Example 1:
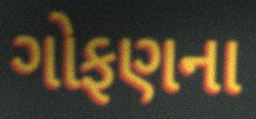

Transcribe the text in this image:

ગોફણના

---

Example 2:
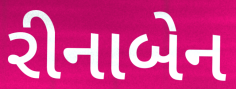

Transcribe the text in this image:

રીનાબેન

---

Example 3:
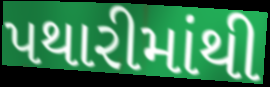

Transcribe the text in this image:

પથારીમાંથી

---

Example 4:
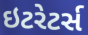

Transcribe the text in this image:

ઇટરેટર્સ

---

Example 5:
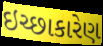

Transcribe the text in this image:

ઇચ્છાકારેણ